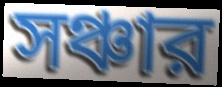
সঞ্চার